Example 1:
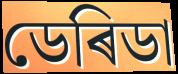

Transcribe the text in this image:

ডেৰিডা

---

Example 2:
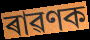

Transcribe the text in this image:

ৰাৱণক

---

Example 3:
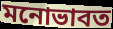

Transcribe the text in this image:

মনোভাবত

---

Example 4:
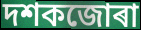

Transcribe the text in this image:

দশকজোৰা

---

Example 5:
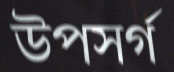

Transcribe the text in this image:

উপসৰ্গ